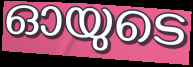
ഓയുടെ